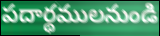
పదార్థములనుండి